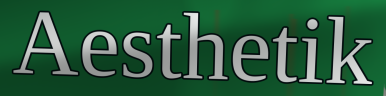
Aesthetik